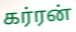
கர்ரன்